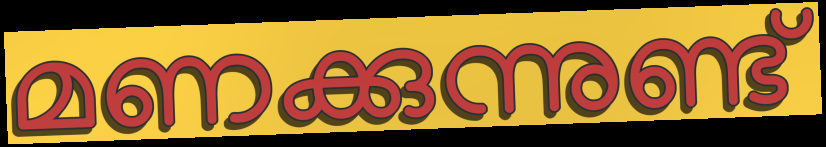
മണക്കുന്നുണ്ട്